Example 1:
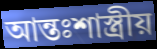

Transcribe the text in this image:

আন্তঃশাস্ত্রীয়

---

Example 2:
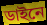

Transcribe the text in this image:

ডাইনে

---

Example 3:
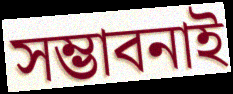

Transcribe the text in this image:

সম্ভাবনাই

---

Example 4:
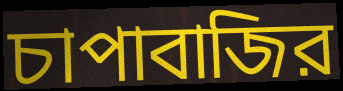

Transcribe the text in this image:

চাপাবাজির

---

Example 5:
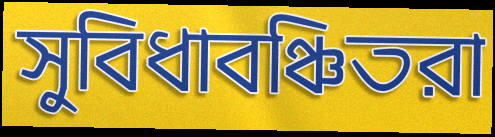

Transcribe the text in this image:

সুবিধাবঞ্চিতরা